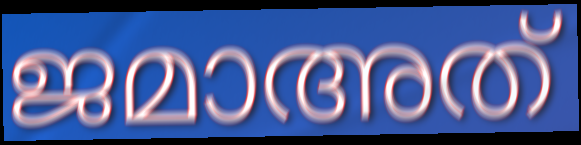
ജമാഅത്